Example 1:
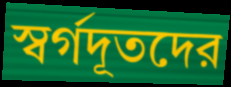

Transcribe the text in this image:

স্বর্গদূতদের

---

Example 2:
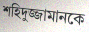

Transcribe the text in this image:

শহিদুজ্জামানকে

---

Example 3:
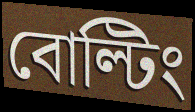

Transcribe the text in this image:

বোল্টিং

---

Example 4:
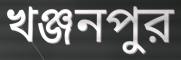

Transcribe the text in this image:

খঞ্জনপুর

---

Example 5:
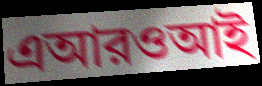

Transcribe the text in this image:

এআরওআই